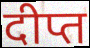
दीप्त